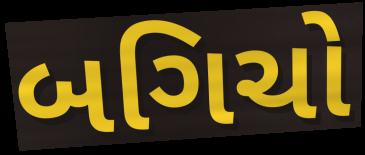
બગિચો